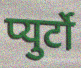
प्युर्टो